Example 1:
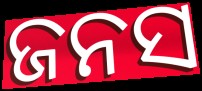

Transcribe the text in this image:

ଜନସ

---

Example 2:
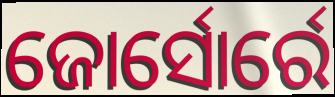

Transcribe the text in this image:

ଜୋର୍ସୋର୍ରେ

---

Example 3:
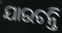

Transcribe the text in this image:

ଯାଉଚନ୍ତି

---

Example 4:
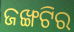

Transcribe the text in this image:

ଜଙ୍ଖଟିର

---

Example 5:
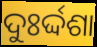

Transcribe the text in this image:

ଦୁଃର୍ଦ୍ଦଶା